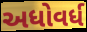
અધોવર્ધ